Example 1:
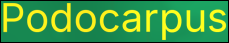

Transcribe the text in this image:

Podocarpus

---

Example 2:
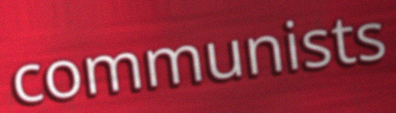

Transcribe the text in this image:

communists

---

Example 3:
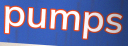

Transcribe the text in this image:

pumps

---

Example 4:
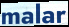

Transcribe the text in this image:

malar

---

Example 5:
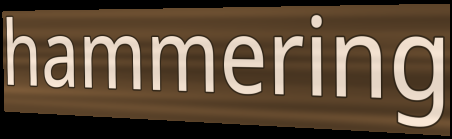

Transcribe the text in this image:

hammering